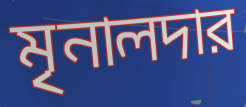
মৃনালদার